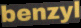
benzyl